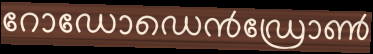
റോഡോഡെൻഡ്രോൺ